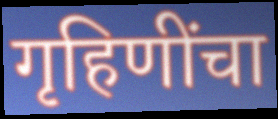
गृहिणींचा